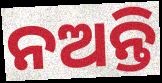
ନଅନ୍ତି